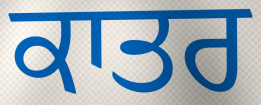
ਕਾਤਰ